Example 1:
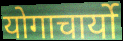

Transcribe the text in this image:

योगाचार्यो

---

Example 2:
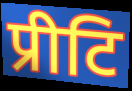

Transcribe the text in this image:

प्रीटि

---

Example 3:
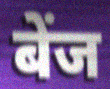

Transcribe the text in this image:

बेंज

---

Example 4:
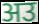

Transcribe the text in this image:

अउ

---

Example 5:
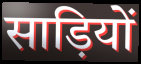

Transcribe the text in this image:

साड़ियों